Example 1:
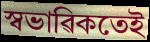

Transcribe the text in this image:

স্বভাৱিকতেই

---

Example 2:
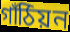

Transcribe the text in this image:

গাঁঠিয়ন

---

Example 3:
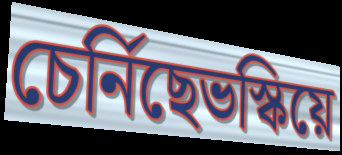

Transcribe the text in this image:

চেৰ্নিছেভস্কিয়ে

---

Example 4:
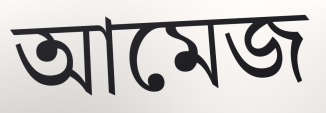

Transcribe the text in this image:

আমেজ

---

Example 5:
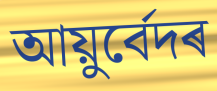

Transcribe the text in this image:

আয়ুৰ্বেদৰ